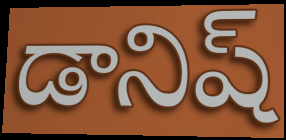
డానిష్